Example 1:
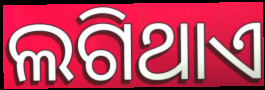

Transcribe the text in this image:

ଲଗିଥାଏ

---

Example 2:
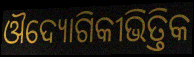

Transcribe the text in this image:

ଔଦ୍ୟୋଗିକୀଭିତ୍ତିକ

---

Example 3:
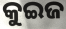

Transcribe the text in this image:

କୁଇଜ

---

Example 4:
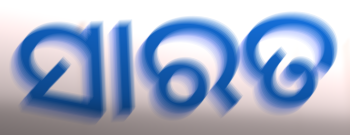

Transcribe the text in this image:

ସାରତ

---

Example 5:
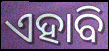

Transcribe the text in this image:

ଏହାବି